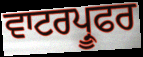
ਵਾਟਰਪ੍ਰੂਫਰ